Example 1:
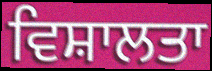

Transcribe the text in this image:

ਵਿਸ਼ਾਲਤਾ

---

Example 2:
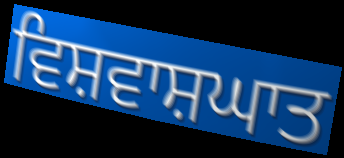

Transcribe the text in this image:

ਵਿਸ਼ਵਾਸ਼ਘਾਤ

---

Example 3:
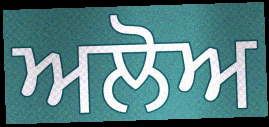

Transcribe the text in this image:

ਅਲੋਅ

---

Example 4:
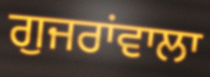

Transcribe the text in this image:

ਗੁਜਰਾਂਵਾਲਾ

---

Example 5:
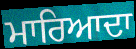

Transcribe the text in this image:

ਮਾਰਿਆਦਾ